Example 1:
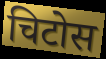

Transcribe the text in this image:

चिटोस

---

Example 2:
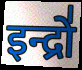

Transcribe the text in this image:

इन्द्रो॑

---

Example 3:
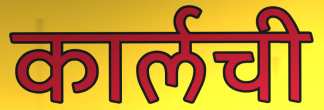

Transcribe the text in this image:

कार्लची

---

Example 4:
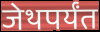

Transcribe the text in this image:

जेथपर्यंत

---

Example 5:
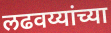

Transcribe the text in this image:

लढवय्यांच्या